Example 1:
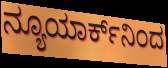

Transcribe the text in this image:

ನ್ಯೂಯಾರ್ಕ್‌ನಿಂದ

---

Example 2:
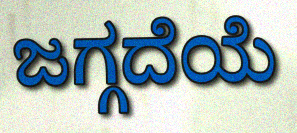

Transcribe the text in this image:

ಜಗ್ಗದೆಯೆ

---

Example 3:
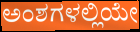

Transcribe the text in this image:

ಅಂಶಗಳಲ್ಲಿಯೇ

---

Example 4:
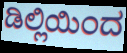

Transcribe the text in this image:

ಡಿಲ್ಲಿಯಿಂದ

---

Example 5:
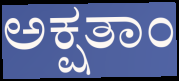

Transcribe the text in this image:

ಅಕ್ಷತಾಂ